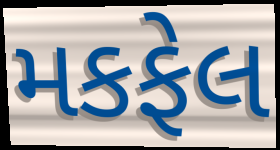
મકફેલ